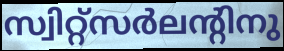
സ്വിറ്റ്സർലന്റിനു